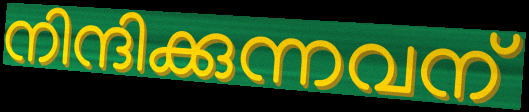
നിന്ദിക്കുന്നവന്